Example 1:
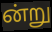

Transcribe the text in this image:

ன்று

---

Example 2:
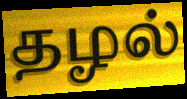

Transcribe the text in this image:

தழல்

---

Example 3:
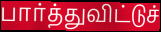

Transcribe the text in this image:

பார்த்துவிட்டுச்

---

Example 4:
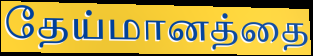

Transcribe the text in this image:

தேய்மானத்தை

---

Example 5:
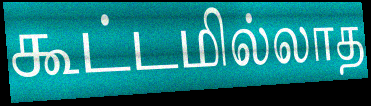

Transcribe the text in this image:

கூட்டமில்லாத